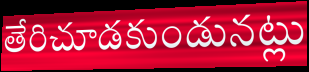
తేరిచూడకుండునట్లు